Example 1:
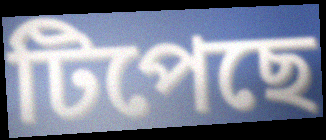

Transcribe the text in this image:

টিপেছে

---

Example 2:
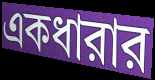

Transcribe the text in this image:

একধারার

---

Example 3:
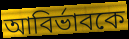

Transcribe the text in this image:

আবির্ভাবকে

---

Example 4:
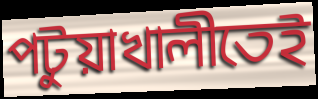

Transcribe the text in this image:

পটুয়াখালীতেই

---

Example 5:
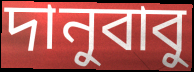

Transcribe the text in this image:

দানুবাবু